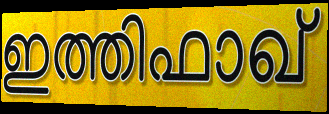
ഇത്തിഫാഖ്